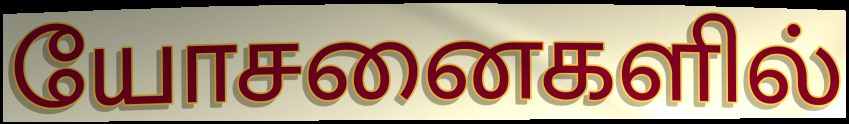
யோசனைகளில்